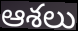
ఆశలు